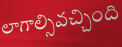
లాగాల్సివచ్చింది